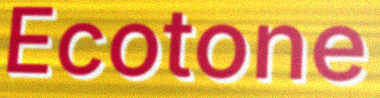
Ecotone